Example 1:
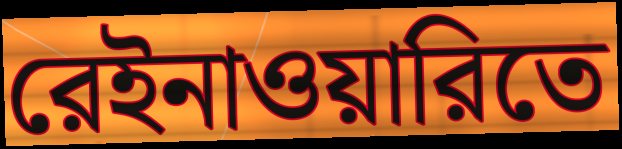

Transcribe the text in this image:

রেইনাওয়ারিতে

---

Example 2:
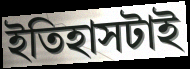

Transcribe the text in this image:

ইতিহাসটাই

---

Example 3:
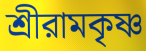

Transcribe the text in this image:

শ্রীরামকৃষ্ণ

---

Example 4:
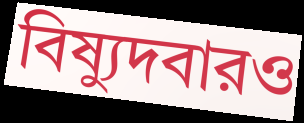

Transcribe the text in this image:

বিষ্যুদবারও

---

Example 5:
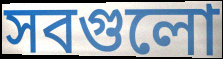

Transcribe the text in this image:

সবগুলো